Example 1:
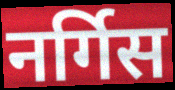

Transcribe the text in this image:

नर्गिस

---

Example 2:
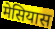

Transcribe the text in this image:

मेसियास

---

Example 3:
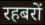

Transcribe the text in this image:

रहबरों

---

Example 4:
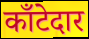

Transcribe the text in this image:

काँटेदार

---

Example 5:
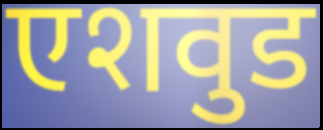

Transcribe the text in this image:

एशवुड